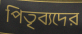
পিতৃব্যদের